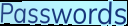
Passwords